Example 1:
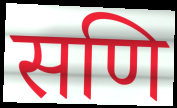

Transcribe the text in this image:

सणि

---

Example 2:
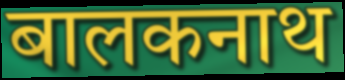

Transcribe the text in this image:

बालकनाथ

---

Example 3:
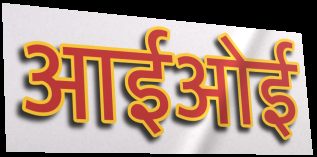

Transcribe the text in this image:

आईओई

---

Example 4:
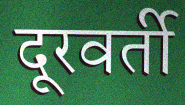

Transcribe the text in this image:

दूरवर्ती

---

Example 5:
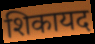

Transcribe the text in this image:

शिकायद